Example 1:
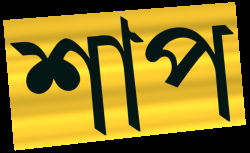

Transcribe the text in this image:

শাপ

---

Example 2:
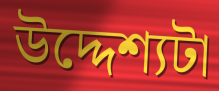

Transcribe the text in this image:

উদ্দেশ্যটা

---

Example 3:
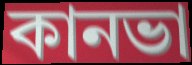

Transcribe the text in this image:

কানভা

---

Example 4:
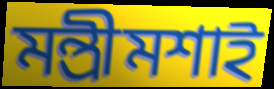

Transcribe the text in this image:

মন্ত্রীমশাই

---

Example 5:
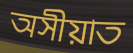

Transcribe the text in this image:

অসীয়াত